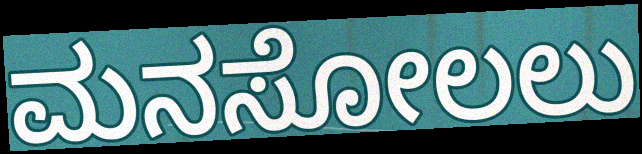
ಮನಸೋಲಲು